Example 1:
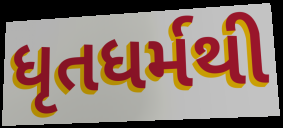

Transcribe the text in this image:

ધૃતધર્મથી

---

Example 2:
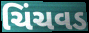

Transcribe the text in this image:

ચિંચવડ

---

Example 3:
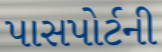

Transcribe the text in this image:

પાસપોર્ટની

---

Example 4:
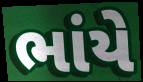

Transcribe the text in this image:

ભાંયે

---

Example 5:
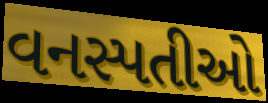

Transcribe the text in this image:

વનસ્પતીઓ